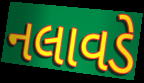
નલાવડે